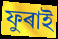
ফুৰাই